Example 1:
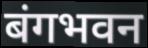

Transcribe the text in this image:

बंगभवन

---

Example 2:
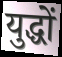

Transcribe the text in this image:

युद्धों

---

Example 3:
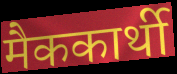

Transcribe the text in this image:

मैककार्थी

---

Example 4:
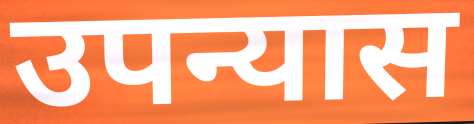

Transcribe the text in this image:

उपन्यास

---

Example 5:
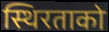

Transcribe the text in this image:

स्थिरताको